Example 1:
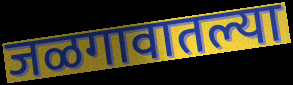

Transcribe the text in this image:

जळगावातल्या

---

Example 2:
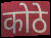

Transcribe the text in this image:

कोठे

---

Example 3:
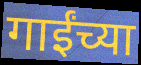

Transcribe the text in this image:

गाईंच्या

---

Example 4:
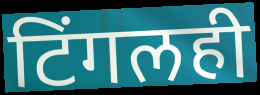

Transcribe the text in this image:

टिंगलही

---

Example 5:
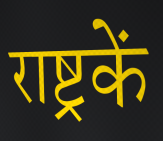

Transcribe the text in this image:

राष्ट्रकें